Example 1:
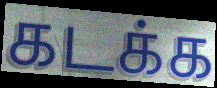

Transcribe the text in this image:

கடக்க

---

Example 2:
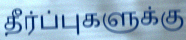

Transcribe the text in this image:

தீர்ப்புகளுக்கு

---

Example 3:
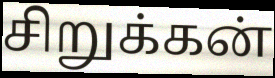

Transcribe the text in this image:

சிறுக்கன்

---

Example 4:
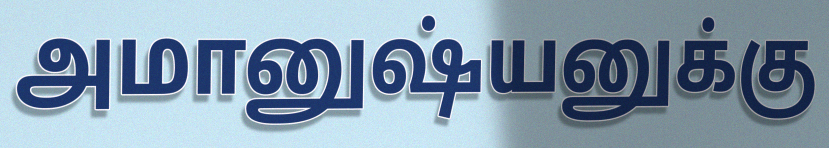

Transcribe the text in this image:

அமானுஷ்யனுக்கு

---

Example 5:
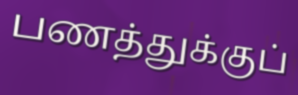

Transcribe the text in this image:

பணத்துக்குப்